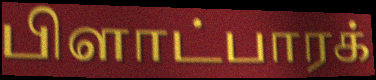
பிளாட்பாரக்